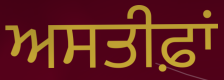
ਅਸਤੀਫ਼ਾਂ